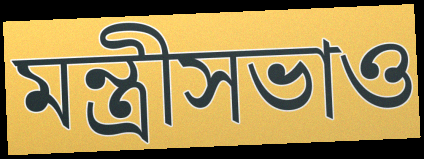
মন্ত্রীসভাও